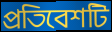
প্রতিবেশটি